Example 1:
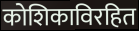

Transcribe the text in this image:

कोशिकाविरहित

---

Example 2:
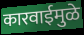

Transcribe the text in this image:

कारवाईमुळे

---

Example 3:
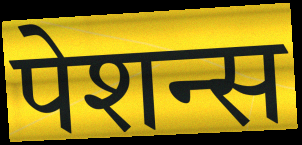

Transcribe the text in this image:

पेशन्स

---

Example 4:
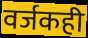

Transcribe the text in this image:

वर्जकही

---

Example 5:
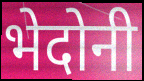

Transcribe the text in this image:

भेदोनी